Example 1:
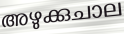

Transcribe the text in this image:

അഴുക്കുചാല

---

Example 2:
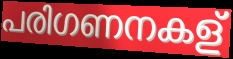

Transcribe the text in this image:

പരിഗണനകള്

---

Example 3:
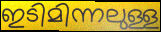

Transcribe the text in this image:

ഇടിമിന്നലുള്ള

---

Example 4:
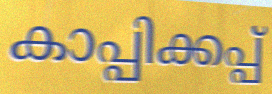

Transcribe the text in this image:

കാപ്പിക്കപ്പ്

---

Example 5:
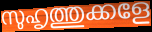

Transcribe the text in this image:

സുഹൃത്തുക്കളേ